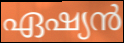
ഏഷ്യൻ